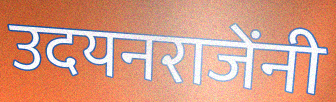
उदयनराजेंनी